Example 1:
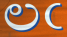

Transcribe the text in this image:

లఁ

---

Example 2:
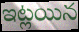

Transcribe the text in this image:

ఇట్లయిన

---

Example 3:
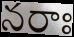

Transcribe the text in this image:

నరాః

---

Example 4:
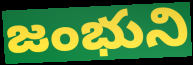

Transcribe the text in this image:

జంభుని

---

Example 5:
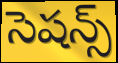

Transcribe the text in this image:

సెషన్స్